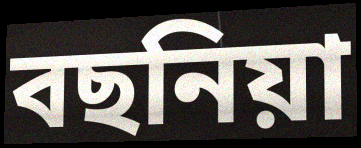
বছনিয়া